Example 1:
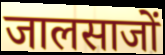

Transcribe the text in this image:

जालसाजों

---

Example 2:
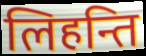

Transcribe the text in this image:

लिहन्ति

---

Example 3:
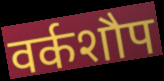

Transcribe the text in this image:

वर्कशौप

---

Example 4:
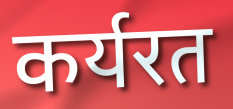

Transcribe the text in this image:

कर्यरत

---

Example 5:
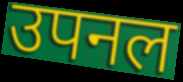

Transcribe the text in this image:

उपनल